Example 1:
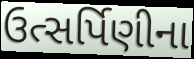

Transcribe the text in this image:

ઉત્સર્પિણીના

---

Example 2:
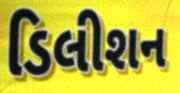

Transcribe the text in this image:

ડિલીશન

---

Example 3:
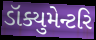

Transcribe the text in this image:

ડૉક્યુમેન્ટરિ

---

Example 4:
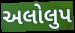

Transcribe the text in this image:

અલોલુપ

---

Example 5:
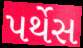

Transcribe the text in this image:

પર્થેસ